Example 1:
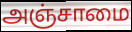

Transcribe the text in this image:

அஞ்சாமை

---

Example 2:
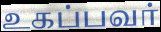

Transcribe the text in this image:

உகப்பவர்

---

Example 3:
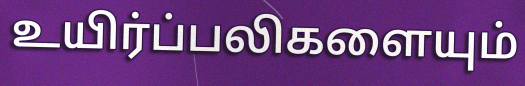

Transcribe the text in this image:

உயிர்ப்பலிகளையும்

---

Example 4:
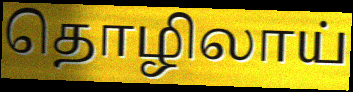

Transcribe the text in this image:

தொழிலாய்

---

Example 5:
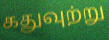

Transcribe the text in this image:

கதுவுற்று